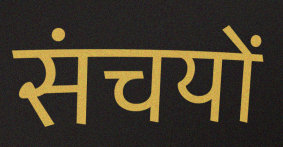
संचयों